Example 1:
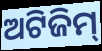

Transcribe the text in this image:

ଅଟିଜିମ୍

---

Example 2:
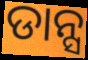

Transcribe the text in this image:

ଡାନ୍ସ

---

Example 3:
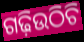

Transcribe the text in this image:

ଗଢ଼ିଉଠିଚି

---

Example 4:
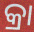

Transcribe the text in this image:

କ୍ରା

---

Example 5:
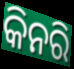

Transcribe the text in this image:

କିନରି